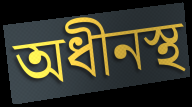
অধীনস্থ